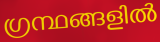
ഗ്രന്ഥങ്ങളിൽ